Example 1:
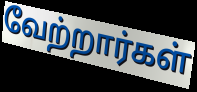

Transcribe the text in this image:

வேற்றார்கள்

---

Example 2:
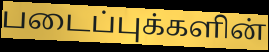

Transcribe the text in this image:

படைப்புக்களின்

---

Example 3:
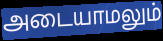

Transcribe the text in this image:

அடையாமலும்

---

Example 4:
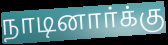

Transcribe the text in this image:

நாடினார்க்கு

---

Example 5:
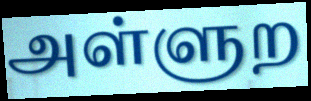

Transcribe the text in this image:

அள்ளுற